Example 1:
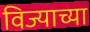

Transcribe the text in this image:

विज्याच्या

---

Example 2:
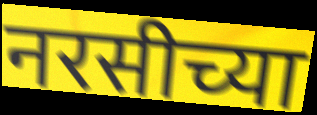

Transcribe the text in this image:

नरसीच्या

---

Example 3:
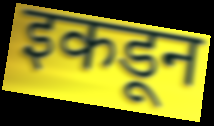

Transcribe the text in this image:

इकडून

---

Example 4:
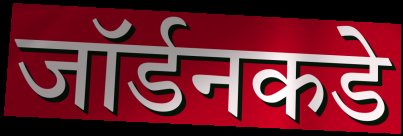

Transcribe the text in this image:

जॉर्डनकडे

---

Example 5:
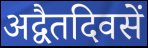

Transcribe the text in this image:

अद्वैतदिवसें